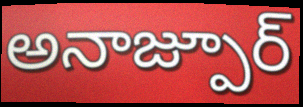
అనాజ్పూర్